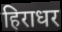
हिराधर